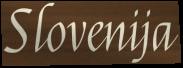
Slovenija